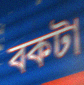
বকটা